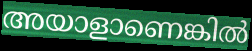
അയാളാണെങ്കിൽ